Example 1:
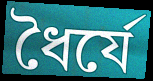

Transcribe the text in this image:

ধৈর্যে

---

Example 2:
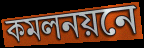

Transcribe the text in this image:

কমলনয়নে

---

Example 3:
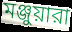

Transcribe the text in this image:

মঞ্জুয়ারা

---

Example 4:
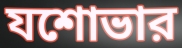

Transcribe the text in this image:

যশোভার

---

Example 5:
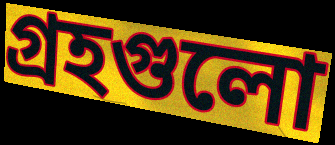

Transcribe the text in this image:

গ্রহগুলো